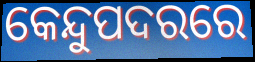
କେନ୍ଦୁପଦରରେ